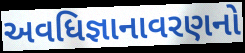
અવધિજ્ઞાનાવરણનો